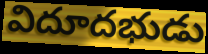
విదూదభుడు